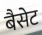
बैसेट